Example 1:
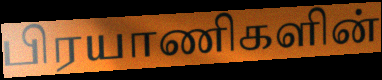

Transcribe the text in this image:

பிரயாணிகளின்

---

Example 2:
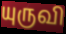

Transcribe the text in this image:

யுருவி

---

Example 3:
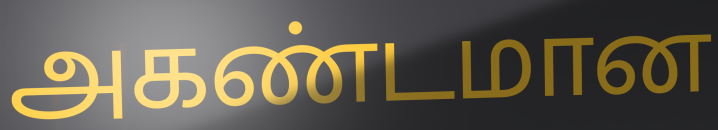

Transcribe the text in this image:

அகண்டமான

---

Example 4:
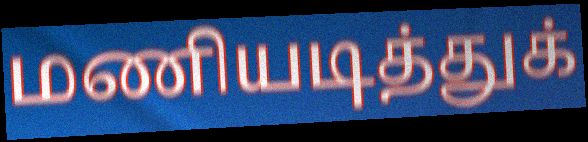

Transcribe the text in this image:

மணியடித்துக்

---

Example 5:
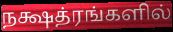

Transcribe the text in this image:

நக்ஷத்ரங்களில்